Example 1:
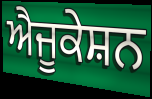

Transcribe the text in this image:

ਐਜੂਕੇਸ਼ਨ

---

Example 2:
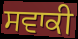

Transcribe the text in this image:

ਸਵਾਕੀ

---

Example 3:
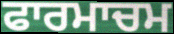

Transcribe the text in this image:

ਫਾਰਮਾਚਮ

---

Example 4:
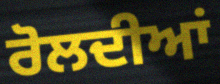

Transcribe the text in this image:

ਰੋਲਦੀਆਂ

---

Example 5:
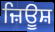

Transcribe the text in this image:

ਜ਼ਿਊਸ਼